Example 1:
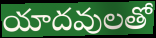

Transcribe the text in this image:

యాదవులతో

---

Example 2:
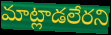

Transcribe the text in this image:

మాట్లాడలేరని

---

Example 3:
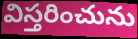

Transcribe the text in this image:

విస్తరించును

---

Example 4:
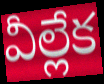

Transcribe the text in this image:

వీల్లేక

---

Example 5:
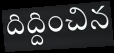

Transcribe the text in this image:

దిద్దించిన